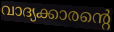
വാദ്യക്കാരന്റെ